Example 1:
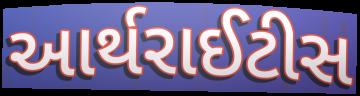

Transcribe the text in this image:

આર્થરાઈટીસ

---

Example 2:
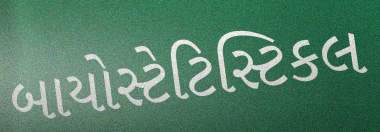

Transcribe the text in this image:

બાયોસ્ટેટિસ્ટિકલ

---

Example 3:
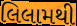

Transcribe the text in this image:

લિલામથી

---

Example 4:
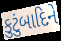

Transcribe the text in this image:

કુટુંબાદિને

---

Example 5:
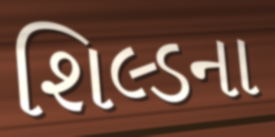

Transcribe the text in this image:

શિલ્ડના